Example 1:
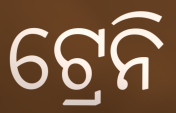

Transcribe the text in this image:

ଟ୍ରେନି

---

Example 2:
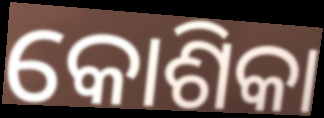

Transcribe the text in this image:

କୋଶିକା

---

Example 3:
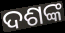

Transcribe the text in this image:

ଦଶଙ୍କ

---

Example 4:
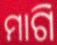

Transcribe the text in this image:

ମାଗି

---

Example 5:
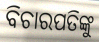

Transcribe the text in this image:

ବିଚାରପତିଙ୍କୁ